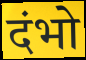
दंभो